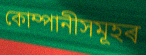
কোম্পানীসমূহৰ